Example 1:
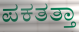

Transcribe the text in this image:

ಪಕತತ್ತಾ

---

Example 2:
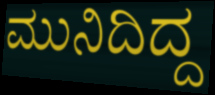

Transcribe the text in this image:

ಮುನಿದಿದ್ದ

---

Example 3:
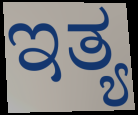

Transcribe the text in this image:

ಇತ್ಯ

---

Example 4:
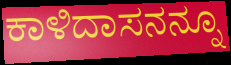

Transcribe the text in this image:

ಕಾಳಿದಾಸನನ್ನೂ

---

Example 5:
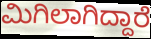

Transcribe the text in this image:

ಮಿಗಿಲಾಗಿದ್ದಾರೆ